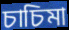
চাচিমা